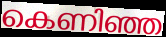
കെണിഞ്ഞ